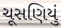
ચૂસણિયું